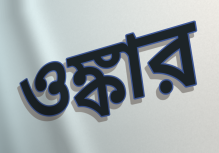
ওঙ্কার